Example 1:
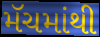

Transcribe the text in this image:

મૅચમાંથી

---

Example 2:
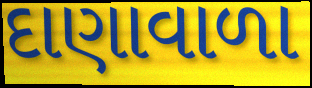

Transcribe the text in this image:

દાણાવાળા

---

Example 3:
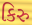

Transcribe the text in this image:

કિરુ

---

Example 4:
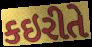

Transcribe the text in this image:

કઇરીતે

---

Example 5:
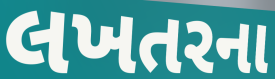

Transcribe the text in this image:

લખતરના